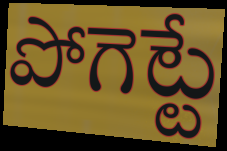
పోగెట్టే